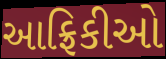
આફ્રિકીઓ